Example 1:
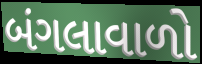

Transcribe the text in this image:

બંગલાવાળો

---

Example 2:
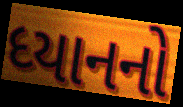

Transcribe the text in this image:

ધ્યાનનો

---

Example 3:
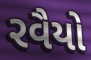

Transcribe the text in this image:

રવૈયો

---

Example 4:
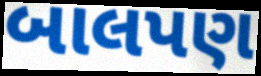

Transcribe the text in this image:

બાલપણ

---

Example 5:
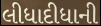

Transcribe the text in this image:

લીધાદીધાની